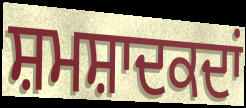
ਸ਼ਮਸ਼ਾਦਕਦਾਂ